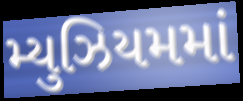
મ્યુઝિયમમાં